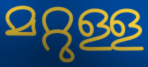
മറ്റുള്ള